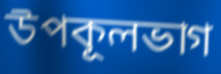
উপকূলভাগ